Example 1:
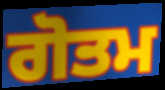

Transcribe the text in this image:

ਗੋਤਮ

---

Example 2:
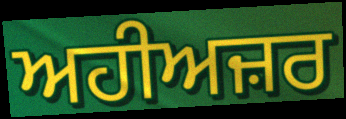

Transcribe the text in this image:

ਅਹੀਅਜ਼ਰ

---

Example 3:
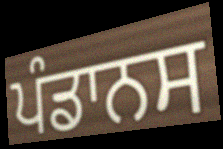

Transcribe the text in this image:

ਪੰਡਾਨਸ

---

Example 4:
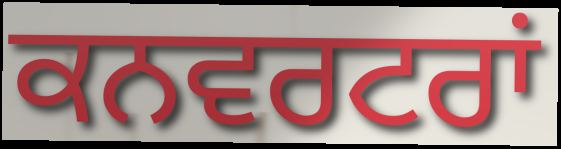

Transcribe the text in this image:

ਕਨਵਰਟਰਾਂ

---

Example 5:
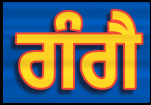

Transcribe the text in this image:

ਗੰਗੈ